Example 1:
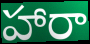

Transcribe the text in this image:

హారా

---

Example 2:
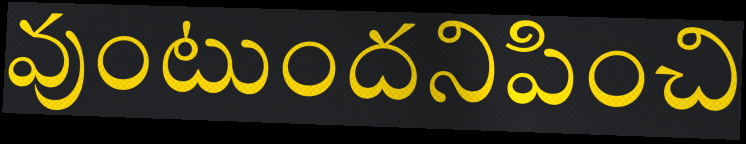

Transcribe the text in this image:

వుంటుందనిపించి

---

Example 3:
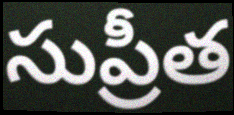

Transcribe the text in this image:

సుప్రీత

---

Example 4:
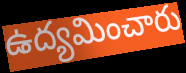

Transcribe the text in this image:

ఉద్యమించారు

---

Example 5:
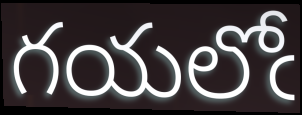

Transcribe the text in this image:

గయలోఁ